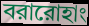
বরারোহাং